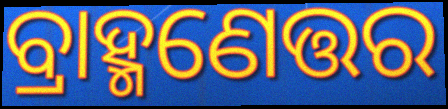
ବ୍ରାହ୍ମଣେତ୍ତର